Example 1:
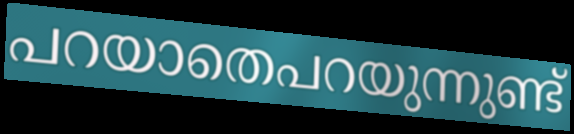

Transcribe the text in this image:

പറയാതെപറയുന്നുണ്ട്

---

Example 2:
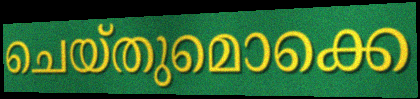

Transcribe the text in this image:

ചെയ്തുമൊക്കെ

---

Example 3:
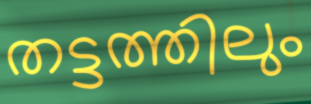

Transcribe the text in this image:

തട്ടത്തിലും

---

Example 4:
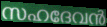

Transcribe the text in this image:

സഹദേവൻ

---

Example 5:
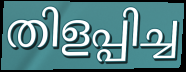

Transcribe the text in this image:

തിളപ്പിച്ച